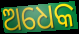
ଅଧେକ